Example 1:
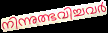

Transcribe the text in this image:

നിന്നുത്ഭവിച്ചവർ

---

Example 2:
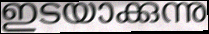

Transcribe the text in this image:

ഇടയാക്കുന്നു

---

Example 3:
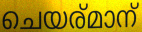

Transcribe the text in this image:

ചെയര്മാന്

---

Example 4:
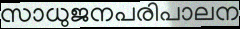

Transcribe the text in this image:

സാധുജനപരിപാലന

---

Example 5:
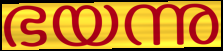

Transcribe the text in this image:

ഭയന്നു